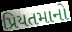
પ્રિયતમાનો